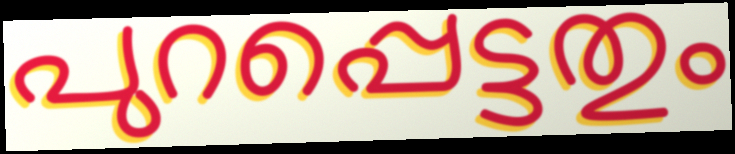
പുറപ്പെട്ടതും